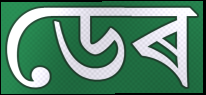
ডেৰ